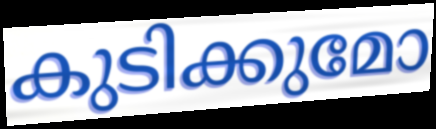
കുടിക്കുമോ